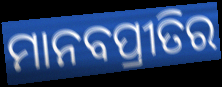
ମାନବପ୍ରୀତିର